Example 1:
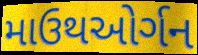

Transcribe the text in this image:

માઉથઓર્ગન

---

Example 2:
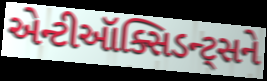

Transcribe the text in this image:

એન્ટીઑક્સિડન્ટ્સને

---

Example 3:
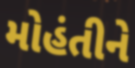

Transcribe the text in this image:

મોહંતીને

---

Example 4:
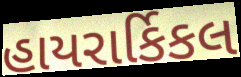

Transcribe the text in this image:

હાયરાર્કિકલ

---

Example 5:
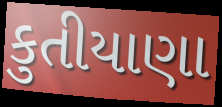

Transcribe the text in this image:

કુતીયાણા